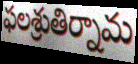
ఫలశ్రుతిర్నామ